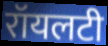
रॉयलटी